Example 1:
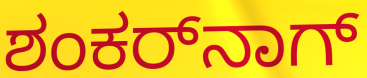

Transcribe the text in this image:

ಶಂಕರ್‌ನಾಗ್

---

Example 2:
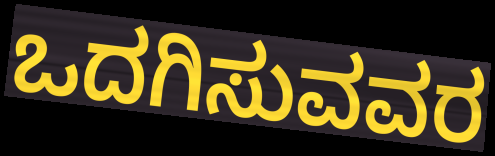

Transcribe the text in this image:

ಒದಗಿಸುವವರ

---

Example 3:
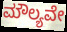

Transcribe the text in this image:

ಮೌಲ್ಯವೇ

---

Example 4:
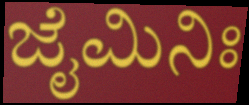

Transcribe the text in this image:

ಜೈಮಿನಿಃ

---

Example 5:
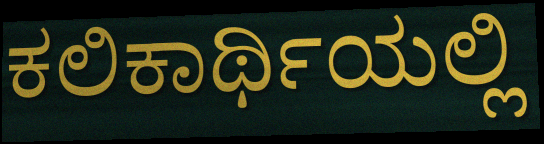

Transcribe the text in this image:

ಕಲಿಕಾರ್ಥಿಯಲ್ಲಿ